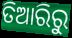
ତିଆରିରୁ